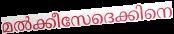
മൽക്കീസേദെക്കിനെ